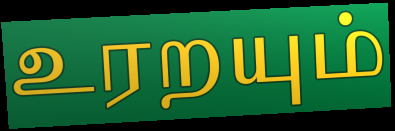
உரறயும்